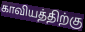
காவியத்திற்கு